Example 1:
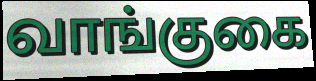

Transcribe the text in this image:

வாங்குகை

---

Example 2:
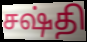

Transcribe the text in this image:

சஷ்தி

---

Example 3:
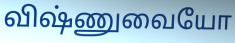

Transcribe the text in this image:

விஷ்ணுவையோ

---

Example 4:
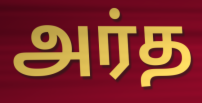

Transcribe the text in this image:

அர்த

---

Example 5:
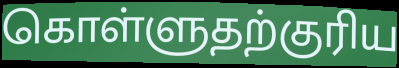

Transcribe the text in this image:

கொள்ளுதற்குரிய